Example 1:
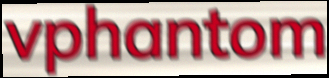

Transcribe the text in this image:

vphantom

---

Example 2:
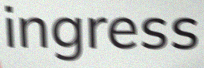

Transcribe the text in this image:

ingress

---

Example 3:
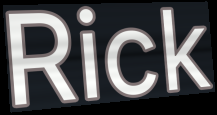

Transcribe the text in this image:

Rick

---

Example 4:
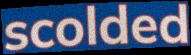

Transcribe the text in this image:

scolded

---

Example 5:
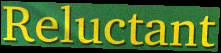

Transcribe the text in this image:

Reluctant